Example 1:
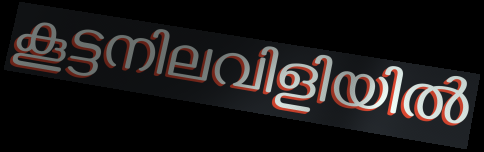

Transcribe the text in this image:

കൂട്ടനിലവിളിയിൽ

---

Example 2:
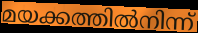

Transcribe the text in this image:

മയക്കത്തിൽനിന്ന്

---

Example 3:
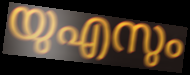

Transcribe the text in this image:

യുഎസും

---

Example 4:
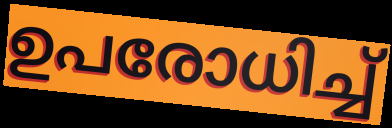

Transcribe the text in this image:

ഉപരോധിച്ച്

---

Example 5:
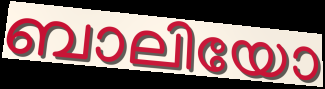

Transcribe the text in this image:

ബാലിയോ